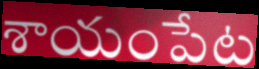
శాయంపేట